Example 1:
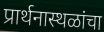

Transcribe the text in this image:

प्रार्थनास्थळांचा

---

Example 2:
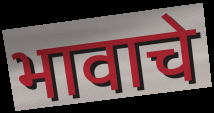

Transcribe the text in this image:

भावाचे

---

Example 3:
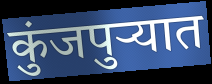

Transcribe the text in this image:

कुंजपुऱ्यात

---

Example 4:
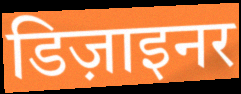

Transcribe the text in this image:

डिज़ाइनर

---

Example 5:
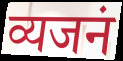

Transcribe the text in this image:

व्यजनं